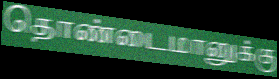
தொண்டைமானுக்கு